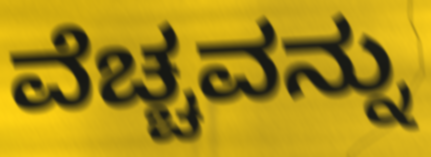
ವೆಚ್ಚವನ್ನು